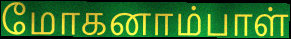
மோகனாம்பாள்